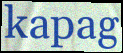
kapag